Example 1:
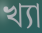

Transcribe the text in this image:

খ্যা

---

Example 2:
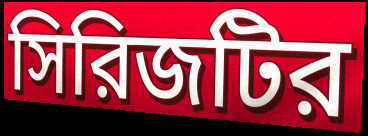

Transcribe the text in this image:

সিরিজটির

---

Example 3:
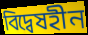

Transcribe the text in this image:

বিদ্বেষহীন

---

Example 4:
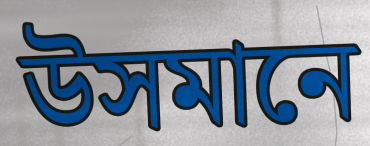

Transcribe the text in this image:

উসমানে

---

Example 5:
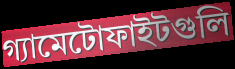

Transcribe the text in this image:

গ্যামেটোফাইটগুলি